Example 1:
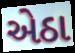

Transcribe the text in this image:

એઠા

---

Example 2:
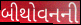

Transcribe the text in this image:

બીથોવનની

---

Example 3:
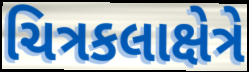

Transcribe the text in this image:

ચિત્રકલાક્ષેત્રે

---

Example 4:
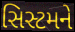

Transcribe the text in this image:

સિસ્ટમને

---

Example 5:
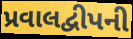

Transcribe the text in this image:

પ્રવાલદ્વીપની